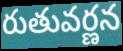
రుతువర్ణన